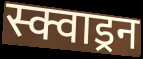
स्क्वाड्रन